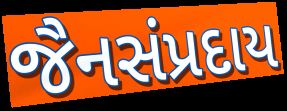
જૈનસંપ્રદાય